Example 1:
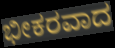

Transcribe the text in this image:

ಭೀಕರವಾದ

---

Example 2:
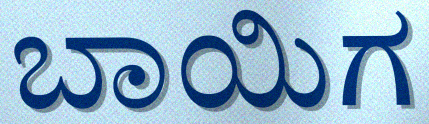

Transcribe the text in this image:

ಬಾಯಿಗ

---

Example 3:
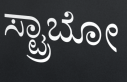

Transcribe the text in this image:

ಸ್ಟ್ರಾಬೋ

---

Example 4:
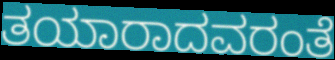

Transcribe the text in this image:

ತಯಾರಾದವರಂತೆ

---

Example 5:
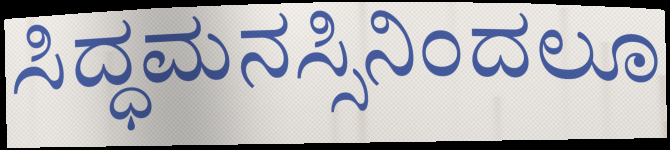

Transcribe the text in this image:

ಸಿದ್ಧಮನಸ್ಸಿನಿಂದಲೂ